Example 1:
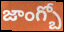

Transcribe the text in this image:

జాంగ్బో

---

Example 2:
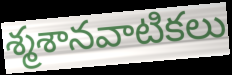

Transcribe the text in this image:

శ్మశానవాటికలు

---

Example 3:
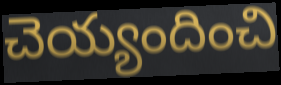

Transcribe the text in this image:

చెయ్యందించి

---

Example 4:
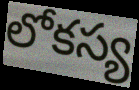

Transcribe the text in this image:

లోకస్య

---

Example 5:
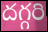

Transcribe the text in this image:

దగ్గరి